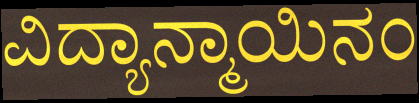
ವಿದ್ಯಾನ್ಮಾಯಿನಂ